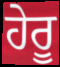
ਹੇਰੂ